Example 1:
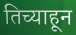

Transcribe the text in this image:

तिच्याहून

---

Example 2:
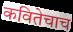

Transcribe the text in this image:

कवितेचाच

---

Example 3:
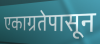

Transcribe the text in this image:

एकाग्रतेपासून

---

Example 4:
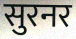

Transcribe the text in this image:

सुरनर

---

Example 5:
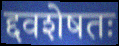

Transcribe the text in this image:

द्दवशेषतः